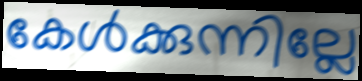
കേൾക്കുന്നില്ലേ